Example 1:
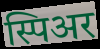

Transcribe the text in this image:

स्पिअर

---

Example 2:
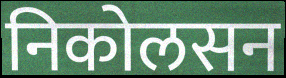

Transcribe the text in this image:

निकोलसन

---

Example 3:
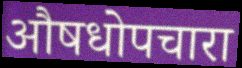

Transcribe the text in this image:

औषधोपचारा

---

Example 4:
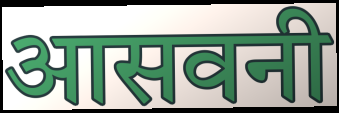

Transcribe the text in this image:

आसवनी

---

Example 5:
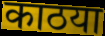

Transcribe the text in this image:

काठया